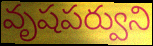
వృషపర్వుని